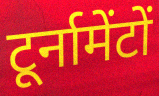
टूर्नामेंटों